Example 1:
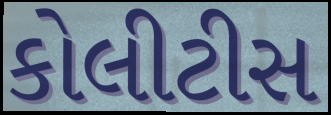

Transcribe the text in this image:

કોલીટીસ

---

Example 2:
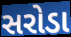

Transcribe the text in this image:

સરોડા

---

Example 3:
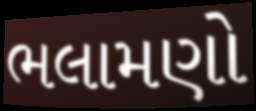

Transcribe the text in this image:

ભલામણો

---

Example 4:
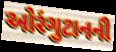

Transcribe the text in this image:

ઓરંગુટાનની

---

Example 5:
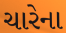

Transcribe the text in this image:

ચારેના